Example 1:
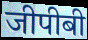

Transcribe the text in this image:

जीपीबी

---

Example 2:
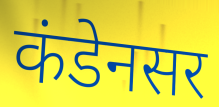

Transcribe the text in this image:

कंडेनसर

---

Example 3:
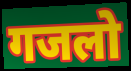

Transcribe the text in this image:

गजलो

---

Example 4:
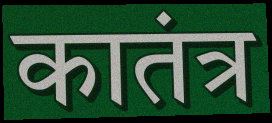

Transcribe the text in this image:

कातंत्र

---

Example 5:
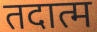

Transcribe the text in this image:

तदात्म